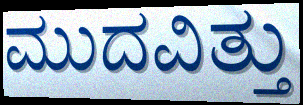
ಮುದವಿತ್ತು